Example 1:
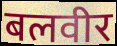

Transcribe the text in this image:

बलवीर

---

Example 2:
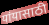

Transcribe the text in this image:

यांयासाठी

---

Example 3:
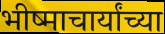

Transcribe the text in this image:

भीष्माचार्यांच्या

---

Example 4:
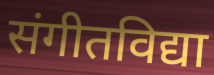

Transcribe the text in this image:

संगीतविद्या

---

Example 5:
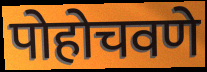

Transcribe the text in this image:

पोहोचवणे